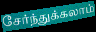
சேர்ந்துக்கலாம்